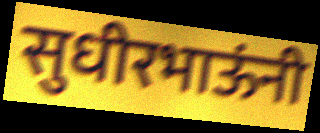
सुधीरभाऊंनी